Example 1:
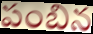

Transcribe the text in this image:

పంబిన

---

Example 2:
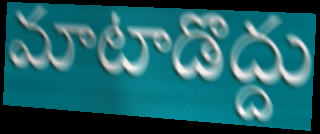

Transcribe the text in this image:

మాటాడొద్దు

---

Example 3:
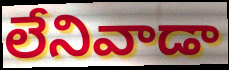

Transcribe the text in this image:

లేనివాడా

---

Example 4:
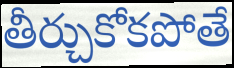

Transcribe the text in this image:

తీర్చుకోకపోతే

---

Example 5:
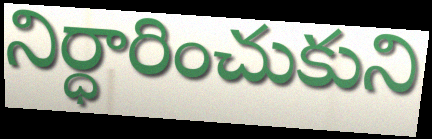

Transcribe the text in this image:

నిర్ధారించుకుని